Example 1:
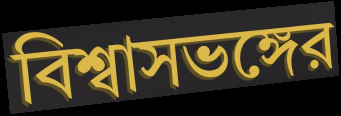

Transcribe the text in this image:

বিশ্বাসভঙ্গের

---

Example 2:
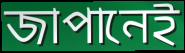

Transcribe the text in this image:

জাপানেই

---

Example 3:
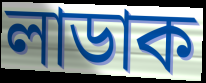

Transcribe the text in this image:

লাডাক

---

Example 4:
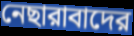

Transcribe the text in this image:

নেছারাবাদের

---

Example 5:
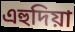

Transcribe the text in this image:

এহুদিয়া